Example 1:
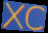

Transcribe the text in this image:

XC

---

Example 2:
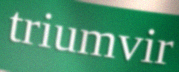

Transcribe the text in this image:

triumvir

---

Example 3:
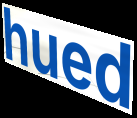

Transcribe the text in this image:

hued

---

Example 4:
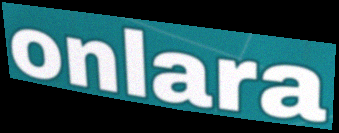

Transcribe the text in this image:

onlara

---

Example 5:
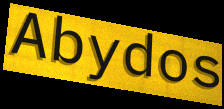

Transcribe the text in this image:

Abydos